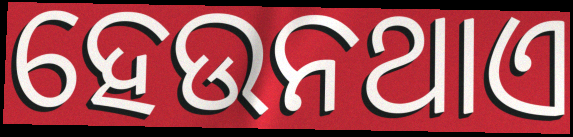
ହେଉନଥାଏ